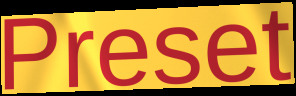
Preset